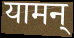
यामन्